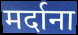
मर्दाना